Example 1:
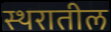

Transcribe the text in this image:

स्थरातील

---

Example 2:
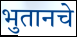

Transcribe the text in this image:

भुतानचे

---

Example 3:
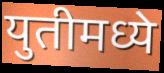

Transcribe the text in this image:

युतीमध्ये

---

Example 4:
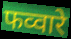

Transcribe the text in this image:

फव्वारे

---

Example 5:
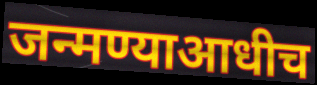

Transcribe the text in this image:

जन्मण्याआधीच